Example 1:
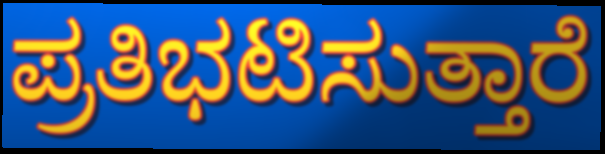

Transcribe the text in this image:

ಪ್ರತಿಭಟಿಸುತ್ತಾರೆ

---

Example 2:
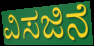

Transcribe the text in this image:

ವಿಸಜಿನೆ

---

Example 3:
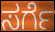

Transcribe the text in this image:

ಸರ್ಗೆ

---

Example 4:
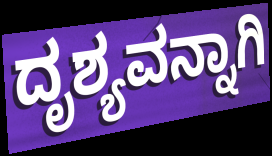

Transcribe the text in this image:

ದೃಶ್ಯವನ್ನಾಗಿ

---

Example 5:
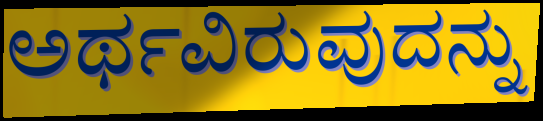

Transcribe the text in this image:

ಅರ್ಥವಿರುವುದನ್ನು